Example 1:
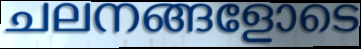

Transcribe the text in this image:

ചലനങ്ങളോടെ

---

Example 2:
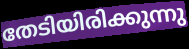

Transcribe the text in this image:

തേടിയിരിക്കുന്നു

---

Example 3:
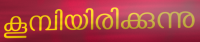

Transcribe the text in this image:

കൂമ്പിയിരിക്കുന്നു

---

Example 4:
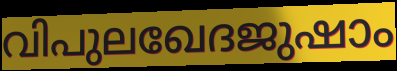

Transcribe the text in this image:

വിപുലഖേദജുഷാം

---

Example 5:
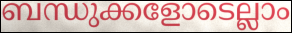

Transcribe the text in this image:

ബന്ധുക്കളോടെല്ലാം